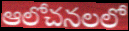
ఆలోచనలలో